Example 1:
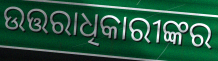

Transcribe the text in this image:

ଉତ୍ତରାଧିକାରୀଙ୍କର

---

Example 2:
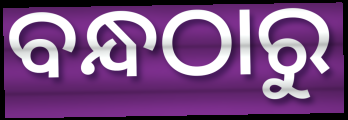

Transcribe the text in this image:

ବନ୍ଧଠାରୁ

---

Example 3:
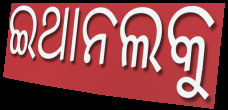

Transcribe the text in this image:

ଇଥାନଲକୁ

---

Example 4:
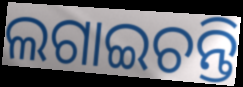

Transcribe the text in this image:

ଲଗାଇଚନ୍ତି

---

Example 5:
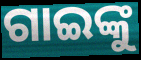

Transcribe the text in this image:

ଗାଇଙ୍କୁ